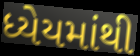
ધ્યેયમાંથી